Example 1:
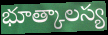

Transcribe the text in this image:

భూత్కాలస్య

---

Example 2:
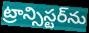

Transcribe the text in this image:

ట్రాన్సిస్టర్‌ను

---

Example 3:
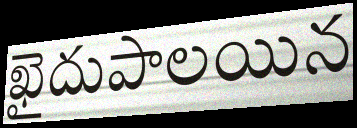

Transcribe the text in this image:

ఖైదుపాలయిన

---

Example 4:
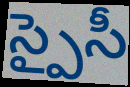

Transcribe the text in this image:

స్పైసీ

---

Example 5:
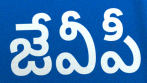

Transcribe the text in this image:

జేవీపీ